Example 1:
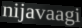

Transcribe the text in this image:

nijavaagi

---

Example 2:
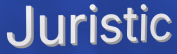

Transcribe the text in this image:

Juristic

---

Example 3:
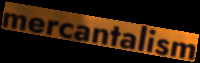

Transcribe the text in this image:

mercantalism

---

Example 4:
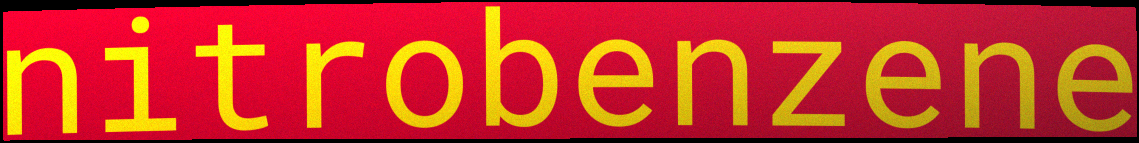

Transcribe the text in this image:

nitrobenzene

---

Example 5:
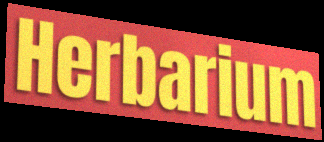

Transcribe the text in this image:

Herbarium